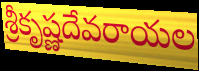
శ్రీకృష్ణదేవరాయల